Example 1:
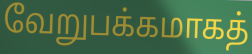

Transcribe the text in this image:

வேறுபக்கமாகத்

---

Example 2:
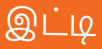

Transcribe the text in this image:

இட்டி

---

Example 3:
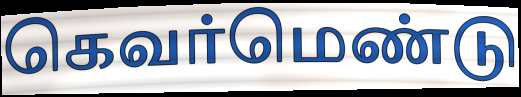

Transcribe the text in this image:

கெவர்மெண்டு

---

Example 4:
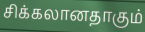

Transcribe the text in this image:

சிக்கலானதாகும்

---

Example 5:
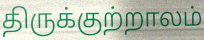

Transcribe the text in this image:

திருக்குற்றாலம்